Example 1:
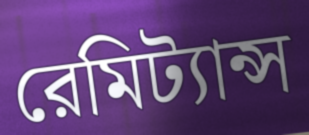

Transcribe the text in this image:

রেমিট্যান্স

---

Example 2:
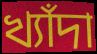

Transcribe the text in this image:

খ্যাঁদা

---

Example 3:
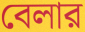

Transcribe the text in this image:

বেলার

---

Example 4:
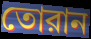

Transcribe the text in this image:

তোরান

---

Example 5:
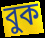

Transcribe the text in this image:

বুক